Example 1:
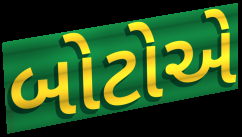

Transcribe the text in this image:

બોટોએ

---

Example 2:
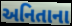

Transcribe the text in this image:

અનિતાના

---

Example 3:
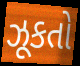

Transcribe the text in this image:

ઝૂકતો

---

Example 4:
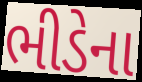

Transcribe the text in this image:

ભીડેના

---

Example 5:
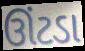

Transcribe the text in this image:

ઊંટડા